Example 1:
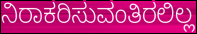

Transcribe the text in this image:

ನಿರಾಕರಿಸುವಂತಿರಲಿಲ್ಲ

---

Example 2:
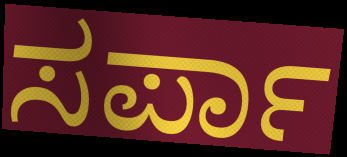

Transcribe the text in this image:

ಸರ್ಪಾ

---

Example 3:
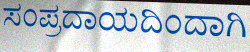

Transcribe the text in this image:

ಸಂಪ್ರದಾಯದಿಂದಾಗಿ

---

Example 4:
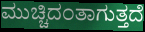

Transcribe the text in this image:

ಮುಚ್ಚಿದಂತಾಗುತ್ತದೆ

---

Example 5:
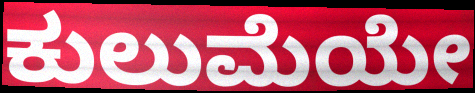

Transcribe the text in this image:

ಕುಲುಮೆಯೇ